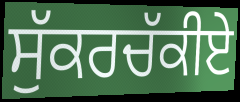
ਸੁੱਕਰਚੱਕੀਏ